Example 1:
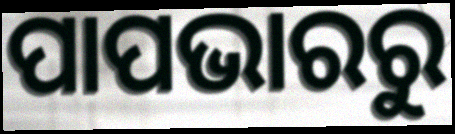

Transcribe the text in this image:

ପାପଭାରରୁ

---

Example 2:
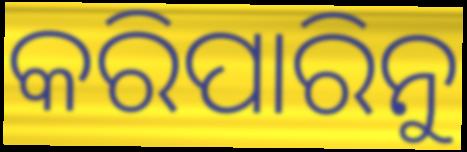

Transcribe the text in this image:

କରିପାରିନୁ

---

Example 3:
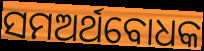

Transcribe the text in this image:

ସମଅର୍ଥବୋଧକ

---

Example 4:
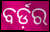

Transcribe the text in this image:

ବର୍ଡ଼ର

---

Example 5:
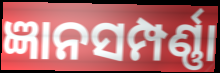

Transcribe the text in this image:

ଜ୍ଞାନସମ୍ପର୍ଣ୍ଣା